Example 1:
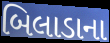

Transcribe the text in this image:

બિલાડાના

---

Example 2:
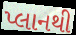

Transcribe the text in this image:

પ્લાનથી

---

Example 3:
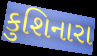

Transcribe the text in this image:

કુશિનારા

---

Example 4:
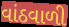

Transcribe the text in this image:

વાંઠવાળી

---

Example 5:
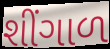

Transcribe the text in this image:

શીંગાળ